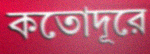
কতোদূরে